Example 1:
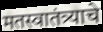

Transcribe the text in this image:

मतस्वातंत्र्याचे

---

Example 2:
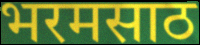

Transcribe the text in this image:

भरमसाठ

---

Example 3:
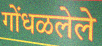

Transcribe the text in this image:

गोंधळलेले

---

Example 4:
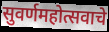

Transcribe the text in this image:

सुवर्णमहोत्सवाचे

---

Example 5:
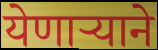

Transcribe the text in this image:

येणाऱ्याने